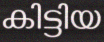
കിട്ടിയ